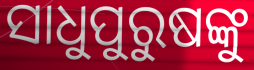
ସାଧୁପୁରୁଷଙ୍କୁ